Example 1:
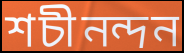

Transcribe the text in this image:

শচীনন্দন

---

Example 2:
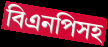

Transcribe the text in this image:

বিএনপিসহ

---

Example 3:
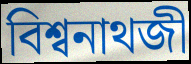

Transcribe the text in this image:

বিশ্বনাথজী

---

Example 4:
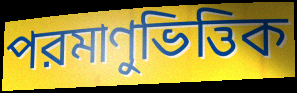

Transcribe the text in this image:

পরমাণুভিত্তিক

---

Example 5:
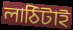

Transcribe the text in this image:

লাঠিটাই